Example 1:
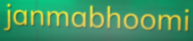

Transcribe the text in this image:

janmabhoomi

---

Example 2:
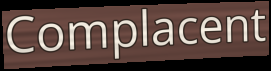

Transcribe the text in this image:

Complacent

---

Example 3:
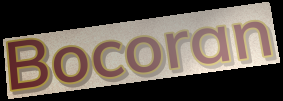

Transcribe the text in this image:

Bocoran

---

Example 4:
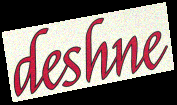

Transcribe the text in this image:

deshne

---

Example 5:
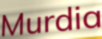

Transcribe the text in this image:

Murdia